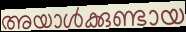
അയാൾക്കുണ്ടായ